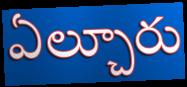
ఏల్చూరు